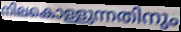
നിലകൊള്ളുന്നതിനും